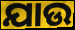
ଯାଉ